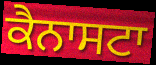
ਕੈਨਾਸਟਾ